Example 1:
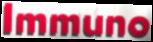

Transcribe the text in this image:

Immuno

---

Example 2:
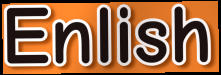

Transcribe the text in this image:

Enlish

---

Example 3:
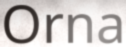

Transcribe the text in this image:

Orna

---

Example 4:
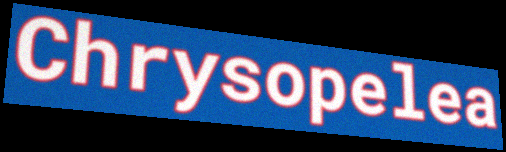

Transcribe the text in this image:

Chrysopelea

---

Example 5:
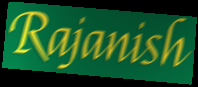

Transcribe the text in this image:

Rajanish